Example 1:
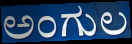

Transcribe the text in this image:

ಅಂಗುಲ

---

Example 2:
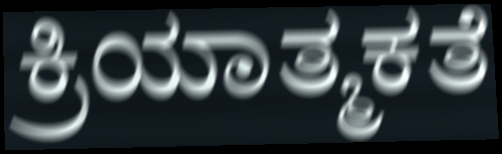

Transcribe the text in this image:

ಕ್ರಿಯಾತ್ಮಕತೆ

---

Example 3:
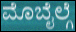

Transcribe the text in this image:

ಮೊಬೈಲ್ಗೆ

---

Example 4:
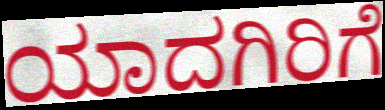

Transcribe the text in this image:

ಯಾದಗಿರಿಗೆ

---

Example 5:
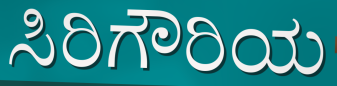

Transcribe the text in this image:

ಸಿರಿಗೌರಿಯ